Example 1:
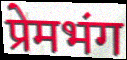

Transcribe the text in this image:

प्रेमभंग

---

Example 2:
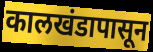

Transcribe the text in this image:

कालखंडापासून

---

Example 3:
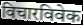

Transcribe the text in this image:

विचारविवेक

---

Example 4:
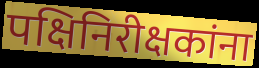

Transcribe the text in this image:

पक्षिनिरीक्षकांना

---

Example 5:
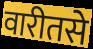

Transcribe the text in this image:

वारीतसे